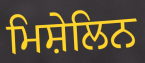
ਮਿਸ਼ੇਲਿਨ